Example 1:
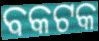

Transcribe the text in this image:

ବକଟକ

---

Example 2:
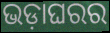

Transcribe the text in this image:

ଭଡ଼ାଘରର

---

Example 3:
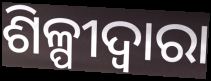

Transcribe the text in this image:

ଶିଳ୍ପୀଦ୍ୱାରା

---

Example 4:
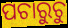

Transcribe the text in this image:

ପଚାରୁଚୁ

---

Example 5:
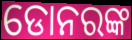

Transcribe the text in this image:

ଡୋନରଙ୍କ